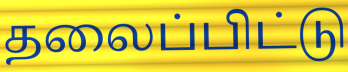
தலைப்பிட்டு